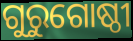
ଗୁରୁଗୋଷ୍ଠୀ